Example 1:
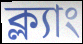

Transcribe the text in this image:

ক্ল্যাং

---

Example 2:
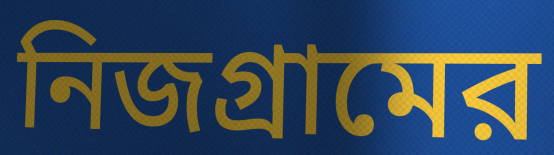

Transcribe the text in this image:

নিজগ্রামের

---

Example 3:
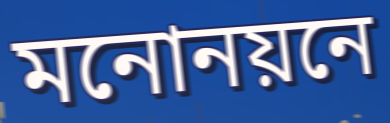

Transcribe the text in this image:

মনোনয়নে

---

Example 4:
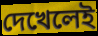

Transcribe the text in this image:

দেখেলেই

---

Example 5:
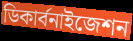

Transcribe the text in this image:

ডিকার্বনাইজেশন